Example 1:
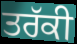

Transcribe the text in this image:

ਤਰੱਕੀ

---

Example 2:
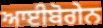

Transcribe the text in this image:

ਆਈਬੋਗੇਨ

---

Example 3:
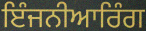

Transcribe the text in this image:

ਇੰਜਨੀਆਰਿੰਗ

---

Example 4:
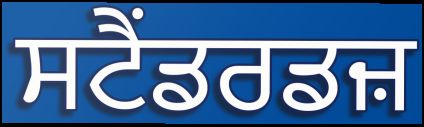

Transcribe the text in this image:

ਸਟੈਂਡਰਡਜ਼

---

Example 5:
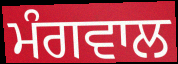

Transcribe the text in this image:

ਮੰਗਵਾਲ